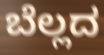
ಬೆಲ್ಲದ